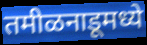
तमीळनाडूमध्ये